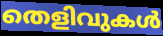
തെളിവുകൾ